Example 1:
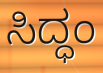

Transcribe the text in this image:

ಸಿದ್ಧಂ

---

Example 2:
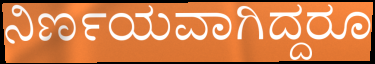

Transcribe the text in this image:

ನಿರ್ಣಯವಾಗಿದ್ದರೂ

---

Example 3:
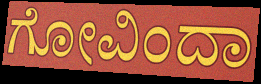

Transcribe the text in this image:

ಗೋವಿಂದಾ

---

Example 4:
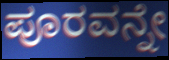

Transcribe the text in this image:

ಪೂರವನ್ನೇ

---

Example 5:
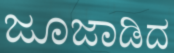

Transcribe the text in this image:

ಜೂಜಾಡಿದ